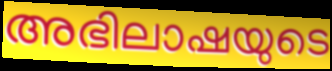
അഭിലാഷയുടെ